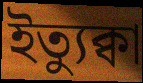
ইত্যুক্বা